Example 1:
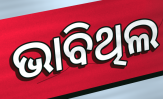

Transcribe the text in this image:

ଭାବିଥିଲ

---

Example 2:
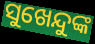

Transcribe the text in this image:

ସୁଖେନ୍ଦୁଙ୍କ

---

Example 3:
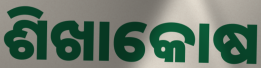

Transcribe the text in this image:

ଶିଖାକୋଷ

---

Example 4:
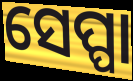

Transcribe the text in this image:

ସେପ୍ପା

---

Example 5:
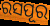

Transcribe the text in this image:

ରସପୂର